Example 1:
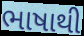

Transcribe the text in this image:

ભાષાથી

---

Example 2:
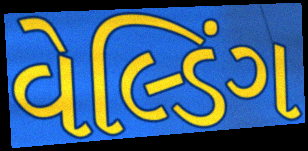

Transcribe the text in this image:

વેલ્ડિંગ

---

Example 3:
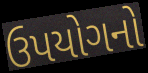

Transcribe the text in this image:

ઉપયોગનો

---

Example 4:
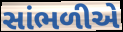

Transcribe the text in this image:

સાંભળીએ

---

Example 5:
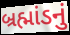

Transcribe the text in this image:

બ્રહ્માંડનું